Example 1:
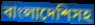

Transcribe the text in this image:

বাংলাদেশিসহ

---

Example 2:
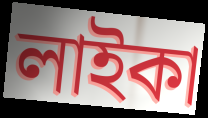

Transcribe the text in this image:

লাইকা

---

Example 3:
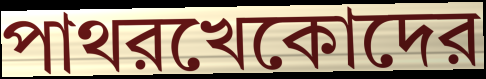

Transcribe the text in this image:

পাথরখেকোদের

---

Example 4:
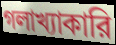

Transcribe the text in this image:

গলাখ্যাকারি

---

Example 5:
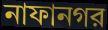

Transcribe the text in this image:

নাফানগর